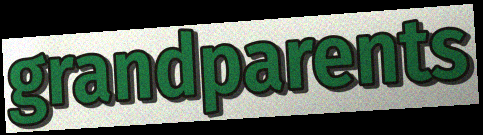
grandparents